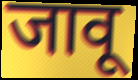
जावू